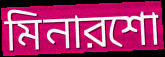
মিনারশো